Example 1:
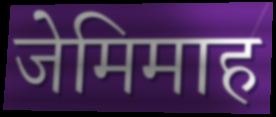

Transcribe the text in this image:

जेमिमाह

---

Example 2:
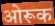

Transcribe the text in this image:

ओरूक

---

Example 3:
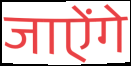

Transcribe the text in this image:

जाऐंगे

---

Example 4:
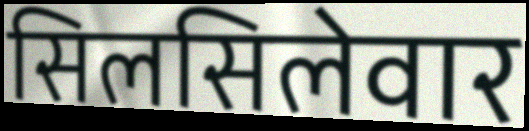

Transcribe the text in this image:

सिलसिलेवार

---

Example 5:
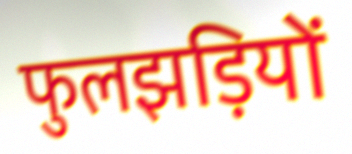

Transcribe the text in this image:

फुलझड़ियों